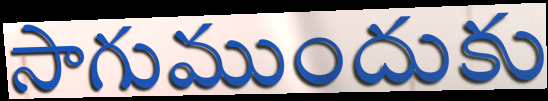
సాగుముందుకు